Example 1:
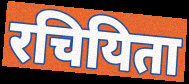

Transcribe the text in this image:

रचियिता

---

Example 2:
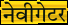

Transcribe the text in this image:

नेवीगेटर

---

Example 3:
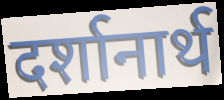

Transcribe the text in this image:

दर्शानार्थ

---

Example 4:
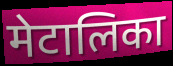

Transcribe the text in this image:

मेटालिका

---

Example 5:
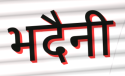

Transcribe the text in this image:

भदैनी